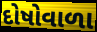
દોષોવાળા